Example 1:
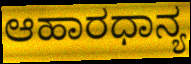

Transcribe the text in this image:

ಆಹಾರಧಾನ್ಯ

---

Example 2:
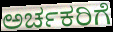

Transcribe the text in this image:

ಅರ್ಚಕರಿಗೆ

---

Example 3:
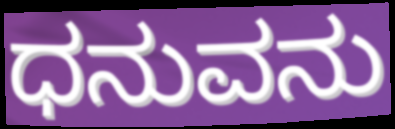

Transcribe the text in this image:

ಧನುವನು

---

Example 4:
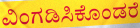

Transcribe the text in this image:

ವಿಂಗಡಿಸಿಕೊಂಡರೆ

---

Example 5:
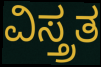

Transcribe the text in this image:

ವಿಸ್ತ್ರತ